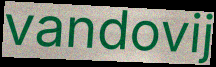
vandovij